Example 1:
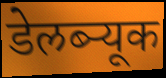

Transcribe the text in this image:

डेलब्ऱ्यूक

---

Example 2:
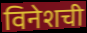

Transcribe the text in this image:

विनेशची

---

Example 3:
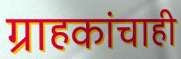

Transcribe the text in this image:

ग्राहकांचाही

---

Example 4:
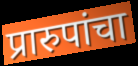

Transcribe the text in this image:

प्रारुपांचा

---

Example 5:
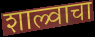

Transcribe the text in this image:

शाल्वाचा